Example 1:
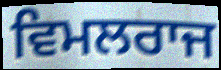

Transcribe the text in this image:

ਵਿਮਲਰਾਜ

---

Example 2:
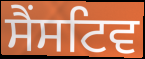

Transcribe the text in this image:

ਸੈਂਸਟਿਵ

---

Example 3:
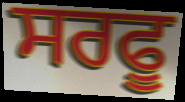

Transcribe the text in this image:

ਸਰਫੂ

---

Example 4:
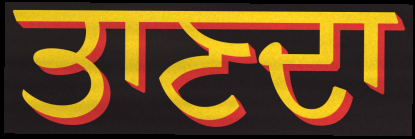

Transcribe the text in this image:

ਤਾਣਦਾ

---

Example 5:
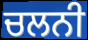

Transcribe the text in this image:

ਚਲਨੀ